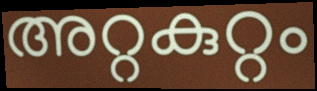
അറ്റകുറ്റം